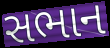
સભાન